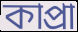
কাপ্রা